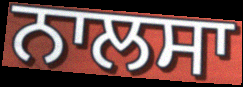
ਨਾਲਸਾ